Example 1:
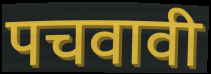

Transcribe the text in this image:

पचवावी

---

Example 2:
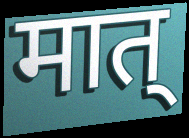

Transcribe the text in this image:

मात्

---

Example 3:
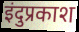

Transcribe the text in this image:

इंदुप्रकाश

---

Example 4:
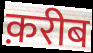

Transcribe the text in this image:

क़रीब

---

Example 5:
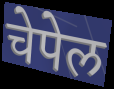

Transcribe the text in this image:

चेपेल